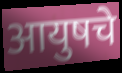
आयुषचे